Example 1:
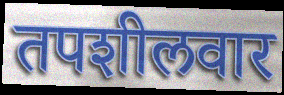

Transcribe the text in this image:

तपशीलवार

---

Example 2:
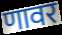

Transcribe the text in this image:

णावर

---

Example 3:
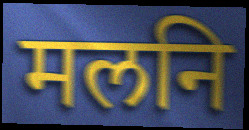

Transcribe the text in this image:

मलनि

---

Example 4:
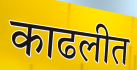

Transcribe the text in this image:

काढलीत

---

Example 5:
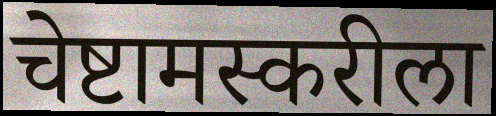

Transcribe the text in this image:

चेष्टामस्करीला